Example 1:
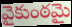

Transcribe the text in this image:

వైకుంఠమై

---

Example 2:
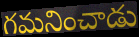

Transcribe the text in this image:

గమనించాడు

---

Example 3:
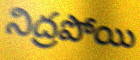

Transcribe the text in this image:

నిద్రపోయి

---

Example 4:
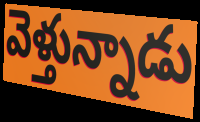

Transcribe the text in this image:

వెళ్తున్నాడు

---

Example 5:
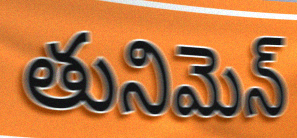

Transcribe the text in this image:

తునిమెన్